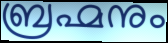
ബ്രഹ്മനും